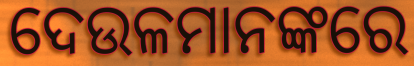
ଦେଉଳମାନଙ୍କରେ